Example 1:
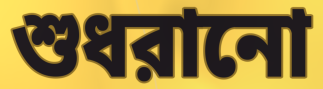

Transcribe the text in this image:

শুধরানো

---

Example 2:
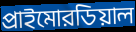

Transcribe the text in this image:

প্রাইমোরডিয়াল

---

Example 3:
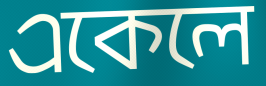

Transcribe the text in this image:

একেলে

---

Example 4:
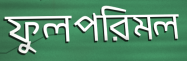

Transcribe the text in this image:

ফুলপরিমল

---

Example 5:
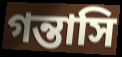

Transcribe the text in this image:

গন্তাসি